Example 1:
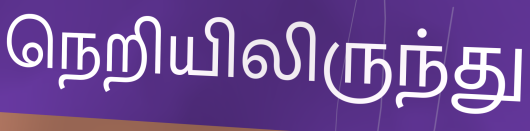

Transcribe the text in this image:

நெறியிலிருந்து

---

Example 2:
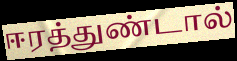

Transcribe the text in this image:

ஈரத்துண்டால்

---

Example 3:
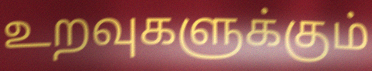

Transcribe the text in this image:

உறவுகளுக்கும்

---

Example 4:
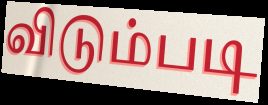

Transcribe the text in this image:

விடும்படி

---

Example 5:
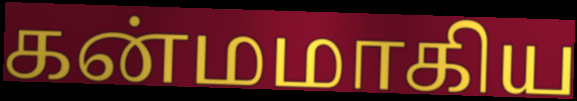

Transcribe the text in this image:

கன்மமாகிய